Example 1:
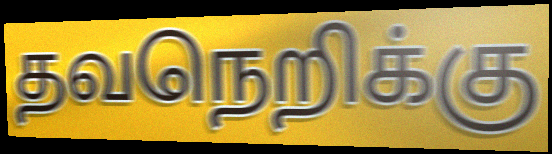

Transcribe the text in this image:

தவநெறிக்கு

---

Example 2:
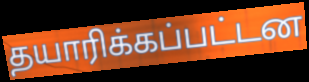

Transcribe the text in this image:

தயாரிக்கப்பட்டன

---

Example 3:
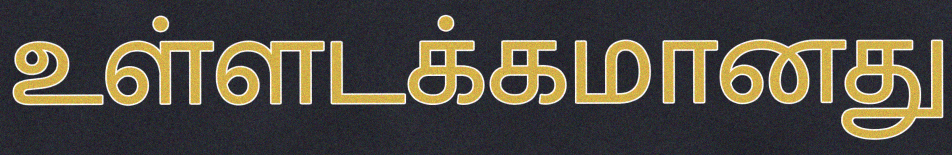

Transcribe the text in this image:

உள்ளடக்கமானது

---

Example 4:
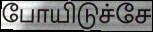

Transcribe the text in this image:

போயிடுச்சே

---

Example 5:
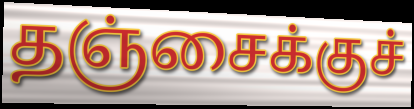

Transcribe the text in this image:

தஞ்சைக்குச்